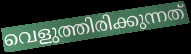
വെളുത്തിരിക്കുന്നത്